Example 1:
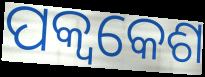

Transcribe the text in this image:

ପକ୍ଵକେଶ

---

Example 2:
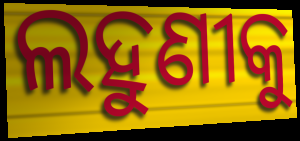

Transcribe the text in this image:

ଲହୁଣୀକୁ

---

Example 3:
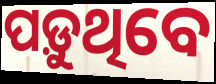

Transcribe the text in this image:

ପଡ଼ୁଥିବେ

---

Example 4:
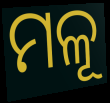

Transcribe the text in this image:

ମଳୂ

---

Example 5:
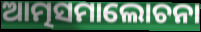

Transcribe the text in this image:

ଆତ୍ମସମାଲୋଚନା